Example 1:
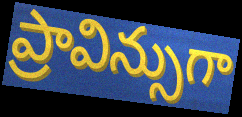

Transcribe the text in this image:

ప్రావిన్సుగా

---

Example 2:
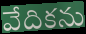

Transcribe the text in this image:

వేదికను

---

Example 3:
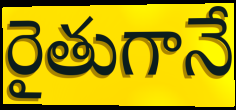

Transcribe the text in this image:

రైతుగానే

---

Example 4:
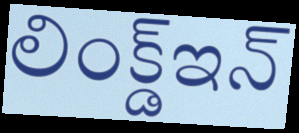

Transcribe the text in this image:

లింక్డ్ఇన్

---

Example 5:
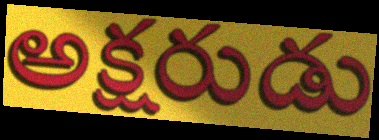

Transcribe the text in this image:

అక్షరుడు